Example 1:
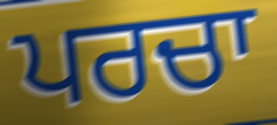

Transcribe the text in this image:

ਪਰਚਾ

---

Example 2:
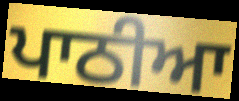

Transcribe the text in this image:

ਪਾਠੀਆ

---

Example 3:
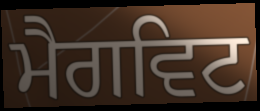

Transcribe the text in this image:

ਮੈਗਵਿਟ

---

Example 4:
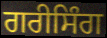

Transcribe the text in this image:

ਗਰੀਸਿੰਗ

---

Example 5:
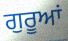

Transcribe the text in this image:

ਗੁਰੂਆਂ